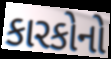
કારકોનો